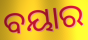
ବୟାର